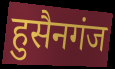
हुसैनगंज